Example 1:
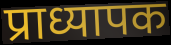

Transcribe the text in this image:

प्राध्यापक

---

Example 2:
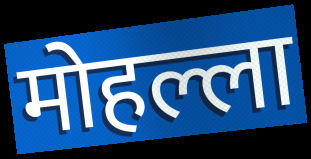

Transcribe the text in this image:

मोहल्‍ला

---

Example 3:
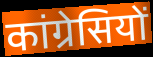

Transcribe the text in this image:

कांग्रेसियों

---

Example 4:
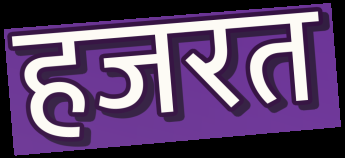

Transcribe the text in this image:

हजरत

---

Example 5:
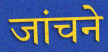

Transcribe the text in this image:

जांचने